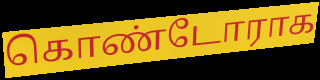
கொண்டோராக